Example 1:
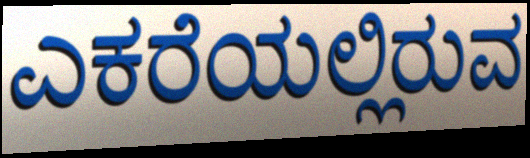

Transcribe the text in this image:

ಎಕರೆಯಲ್ಲಿರುವ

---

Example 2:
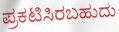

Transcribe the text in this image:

ಪ್ರಕಟಿಸಿರಬಹುದು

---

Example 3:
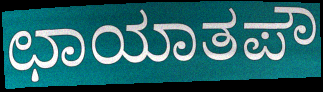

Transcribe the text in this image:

ಛಾಯಾತಪೌ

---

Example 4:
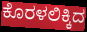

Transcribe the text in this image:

ಕೊರಳಲಿಕ್ಕಿದ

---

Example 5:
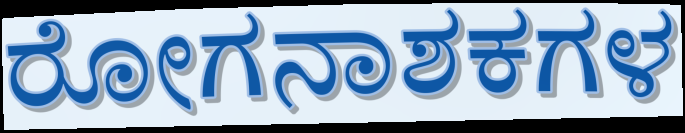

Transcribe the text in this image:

ರೋಗನಾಶಕಗಳ